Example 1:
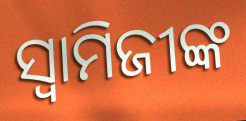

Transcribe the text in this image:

ସ୍ବାମିଜୀଙ୍କ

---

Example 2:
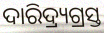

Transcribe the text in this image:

ଦାରିଦ୍ର୍ୟଗ୍ରସ୍ତ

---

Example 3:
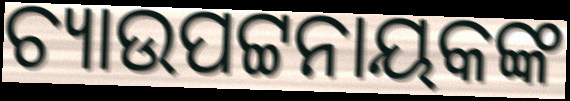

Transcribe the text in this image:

ଚ୍ୟାଉପଟ୍ଟନାୟକଙ୍କ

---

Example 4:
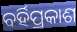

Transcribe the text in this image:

ବର୍ହିପ୍ରକାଶ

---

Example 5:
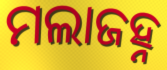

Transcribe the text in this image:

ମଲାଜହ୍ନ